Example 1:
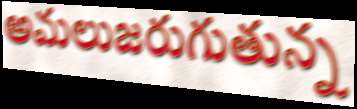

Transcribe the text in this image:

అమలుజరుగుతున్న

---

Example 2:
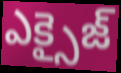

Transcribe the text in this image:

ఎక్సైజ్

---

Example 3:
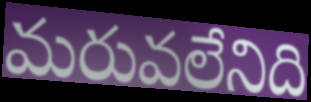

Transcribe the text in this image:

మరువలేనిది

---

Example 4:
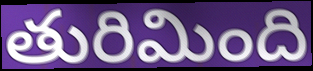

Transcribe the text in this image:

తురిమింది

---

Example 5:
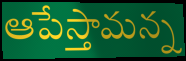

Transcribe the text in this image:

ఆపేస్తామన్న